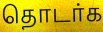
தொடர்க